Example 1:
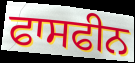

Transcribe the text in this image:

ਫਾਸਫੀਨ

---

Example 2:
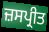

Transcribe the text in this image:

ਜ਼ਸਪ੍ਰੀਤ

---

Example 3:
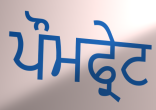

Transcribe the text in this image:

ਪੌਮਫ੍ਰੇਟ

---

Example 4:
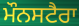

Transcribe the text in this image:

ਮੌਨਸਟੈਰਾ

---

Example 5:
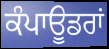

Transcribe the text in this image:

ਕੰਪਾਊਡਰਾਂ